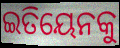
ଇତିୟେନକୁ